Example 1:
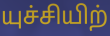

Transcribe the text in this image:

யுச்சியிற்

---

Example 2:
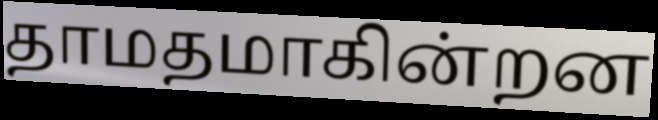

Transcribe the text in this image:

தாமதமாகின்றன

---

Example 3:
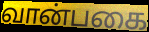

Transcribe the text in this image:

வான்பகை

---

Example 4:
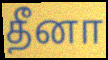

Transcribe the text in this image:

தீனா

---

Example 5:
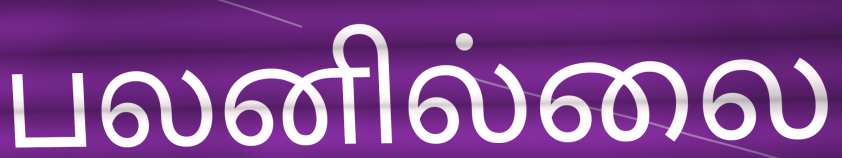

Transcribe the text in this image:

பலனில்லை